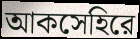
আকসেহিরে